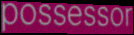
possessor